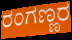
ರಂಗಣ್ಣರ